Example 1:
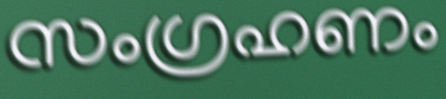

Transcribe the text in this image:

സംഗ്രഹണം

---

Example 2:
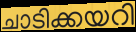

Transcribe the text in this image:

ചാടിക്കയറി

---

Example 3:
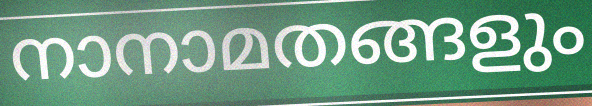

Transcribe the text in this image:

നാനാമതങ്ങളും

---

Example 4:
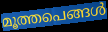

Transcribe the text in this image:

മൂത്തപെങ്ങൾ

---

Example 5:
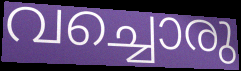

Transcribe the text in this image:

വച്ചൊരു